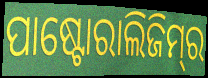
ପାଷ୍ଟୋରାଲିଜିମ୍‌ର